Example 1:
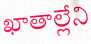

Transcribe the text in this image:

ఖాతాల్లేని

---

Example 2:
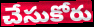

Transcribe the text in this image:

చేసుకోరు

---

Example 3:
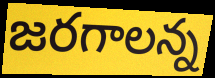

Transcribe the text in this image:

జరగాలన్న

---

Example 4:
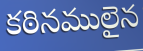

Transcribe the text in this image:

కఠినములైన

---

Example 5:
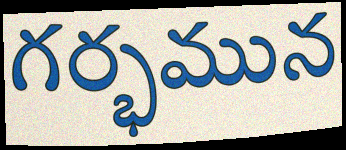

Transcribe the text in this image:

గర్భమున